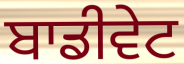
ਬਾਡੀਵੇਟ